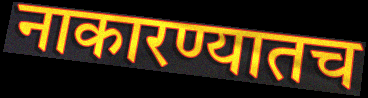
नाकारण्यातच